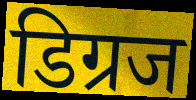
डिग्रज